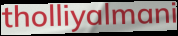
tholliyalmani